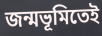
জন্মভূমিতেই